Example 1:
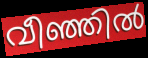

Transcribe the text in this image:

വീഞ്ഞിൽ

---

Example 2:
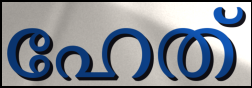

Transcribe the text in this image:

ഹേത്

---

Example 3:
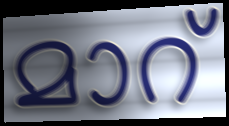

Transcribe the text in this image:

മാറ്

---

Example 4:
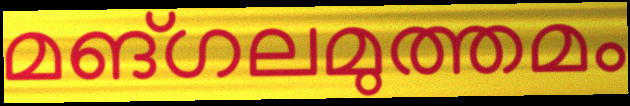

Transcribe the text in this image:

മങ്ഗലമുത്തമം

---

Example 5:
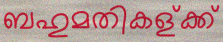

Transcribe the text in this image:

ബഹുമതികള്ക്ക്